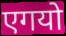
एगयो